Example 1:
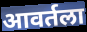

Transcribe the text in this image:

आवर्तला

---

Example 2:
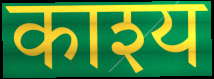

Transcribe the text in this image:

काश्य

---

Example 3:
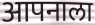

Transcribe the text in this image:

आपनाला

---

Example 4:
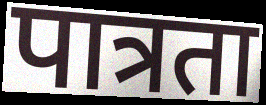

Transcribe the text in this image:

पात्रता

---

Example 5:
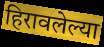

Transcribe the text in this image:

हिरावलेल्या